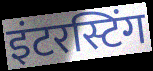
इंटरस्टिंग